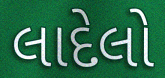
લાદેલો